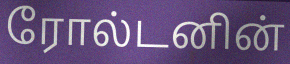
ரோல்டனின்